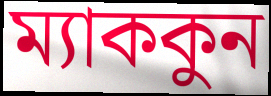
ম্যাককুন